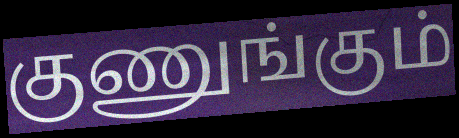
குணுங்கும்